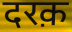
दरक़